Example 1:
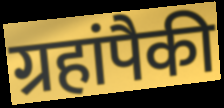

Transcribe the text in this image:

ग्रहांपैकी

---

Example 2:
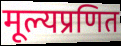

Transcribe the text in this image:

मूल्यप्रणित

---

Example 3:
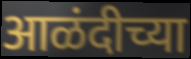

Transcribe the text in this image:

आळंदीच्या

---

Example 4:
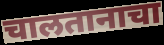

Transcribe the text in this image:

चालतानाचा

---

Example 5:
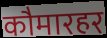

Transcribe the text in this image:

कौमारहर